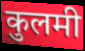
कुलमी